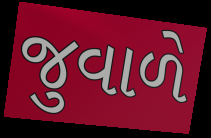
જુવાળે